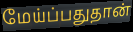
மேய்ப்பதுதான்